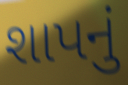
શાપનું